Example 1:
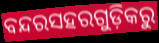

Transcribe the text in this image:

ବନ୍ଦରସହରଗୁଡ଼ିକରୁ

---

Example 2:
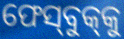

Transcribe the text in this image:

ଫେସ୍‌ବୁକ୍‌କୁ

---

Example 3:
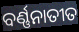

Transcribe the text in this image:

ବର୍ଣ୍ଣନାତୀତ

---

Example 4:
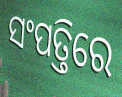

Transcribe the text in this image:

ସଂପତ୍ତିରେ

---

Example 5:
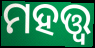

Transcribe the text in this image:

ମହତ୍ତ୍ବ